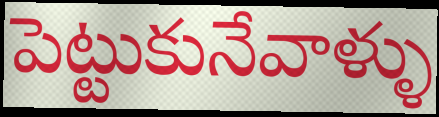
పెట్టుకునేవాళ్ళు